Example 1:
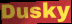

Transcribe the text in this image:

Dusky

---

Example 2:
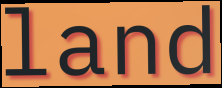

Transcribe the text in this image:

land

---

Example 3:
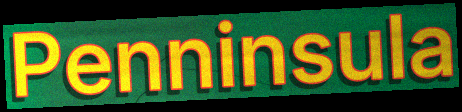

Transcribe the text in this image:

Penninsula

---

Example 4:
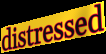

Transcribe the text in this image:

distressed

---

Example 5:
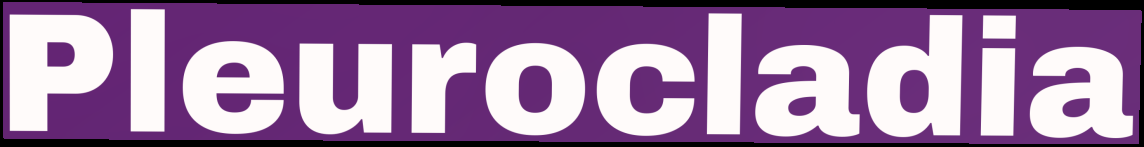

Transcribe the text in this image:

Pleurocladia